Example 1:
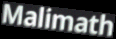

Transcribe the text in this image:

Malimath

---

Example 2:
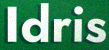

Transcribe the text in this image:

Idris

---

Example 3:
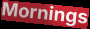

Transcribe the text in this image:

Mornings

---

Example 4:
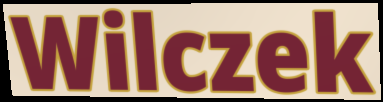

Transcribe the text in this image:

Wilczek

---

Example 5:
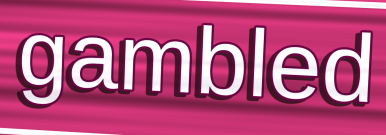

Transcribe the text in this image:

gambled